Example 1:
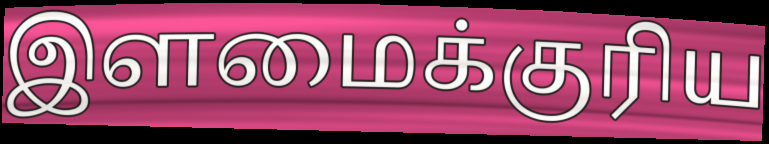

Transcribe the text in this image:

இளமைக்குரிய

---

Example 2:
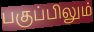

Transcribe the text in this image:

பகுப்பிலும்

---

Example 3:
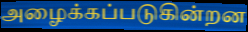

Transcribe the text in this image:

அழைக்கப்படுகின்றன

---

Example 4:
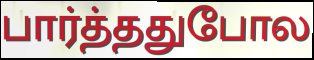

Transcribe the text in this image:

பார்த்ததுபோல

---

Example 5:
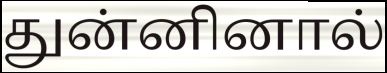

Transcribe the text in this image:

துன்னினால்